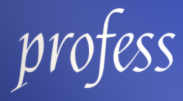
profess